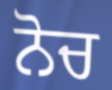
ਨੋਚ